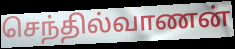
செந்தில்வாணன்